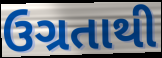
ઉગ્રતાથી